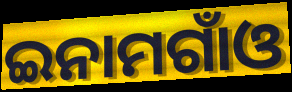
ଇନାମଗାଁଓ